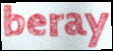
beray